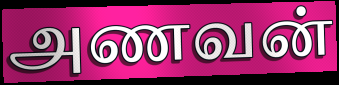
அணவன்